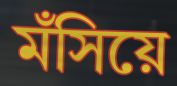
মঁসিয়ে